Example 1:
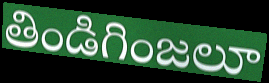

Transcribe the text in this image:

తిండిగింజలూ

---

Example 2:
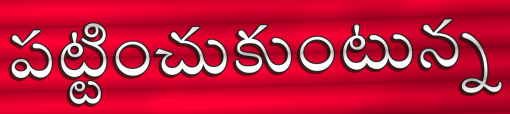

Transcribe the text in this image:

పట్టించుకుంటున్న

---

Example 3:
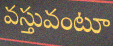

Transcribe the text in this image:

వస్తువంటూ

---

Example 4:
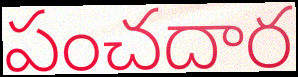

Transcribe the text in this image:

పంచదార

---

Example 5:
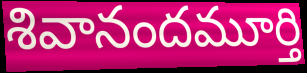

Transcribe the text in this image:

శివానందమూర్తి